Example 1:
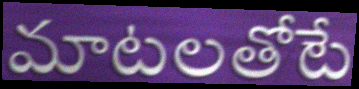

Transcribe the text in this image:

మాటలతోటే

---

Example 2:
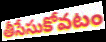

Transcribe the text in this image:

తీసేసుకోవటం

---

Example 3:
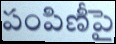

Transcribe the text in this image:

పంపిణీపై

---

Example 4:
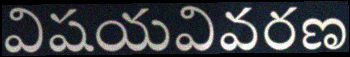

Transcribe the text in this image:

విషయవివరణ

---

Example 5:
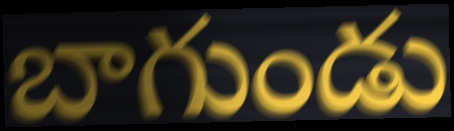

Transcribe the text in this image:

బాగుండు